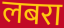
लबरा